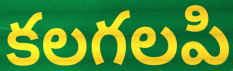
కలగలపి